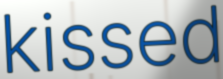
kissed